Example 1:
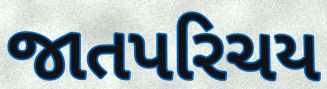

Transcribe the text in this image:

જાતપરિચય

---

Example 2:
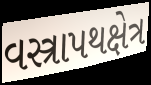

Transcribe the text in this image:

વસ્ત્રાપથક્ષેત્ર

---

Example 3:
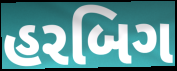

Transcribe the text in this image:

હરબિગ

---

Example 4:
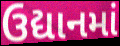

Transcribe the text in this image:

ઉદ્યાનમાં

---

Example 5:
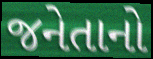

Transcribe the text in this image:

જનેતાનો